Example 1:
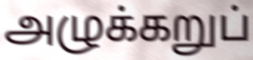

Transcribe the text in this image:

அழுக்கறுப்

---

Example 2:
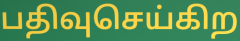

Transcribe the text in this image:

பதிவுசெய்கிற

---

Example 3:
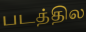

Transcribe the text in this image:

படத்தில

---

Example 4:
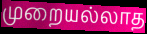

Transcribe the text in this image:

முறையல்லாத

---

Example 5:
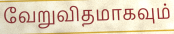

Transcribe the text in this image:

வேறுவிதமாகவும்